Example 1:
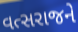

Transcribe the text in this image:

વત્સરાજને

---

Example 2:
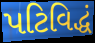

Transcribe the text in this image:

પટિવિદ્ધં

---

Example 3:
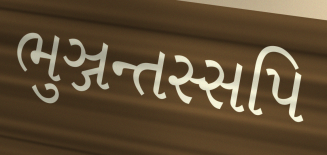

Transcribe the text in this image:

ભુઞ્જન્તસ્સપિ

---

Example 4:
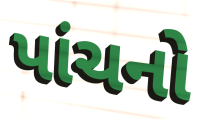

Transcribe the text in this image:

પાંચનો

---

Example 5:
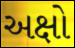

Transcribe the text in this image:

અક્ષો